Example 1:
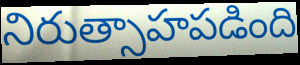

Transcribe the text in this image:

నిరుత్సాహపడింది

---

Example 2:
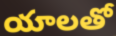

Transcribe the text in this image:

యాలతో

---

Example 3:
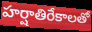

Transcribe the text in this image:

హర్షాతిరేకాలతో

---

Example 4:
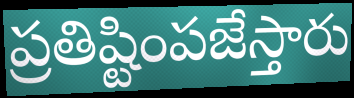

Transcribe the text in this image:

ప్రతిష్టింపజేస్తారు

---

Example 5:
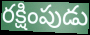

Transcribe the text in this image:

రక్షింపుడు